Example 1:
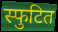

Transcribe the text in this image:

स्फुटित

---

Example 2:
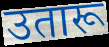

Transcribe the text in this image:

उतारू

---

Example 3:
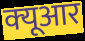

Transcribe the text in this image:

क्‍यूआर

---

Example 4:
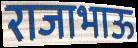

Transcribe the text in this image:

राजाभाऊ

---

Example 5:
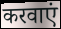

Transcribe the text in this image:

करवाएं